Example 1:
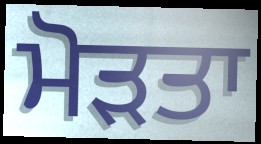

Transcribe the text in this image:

ਮੋੜਤਾ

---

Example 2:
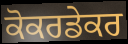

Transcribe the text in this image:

ਕੋਕਰਡੇਕਰ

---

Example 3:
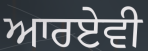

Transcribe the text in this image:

ਆਰਏਵੀ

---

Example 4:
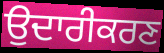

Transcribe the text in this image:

ਉਦਾਰੀਕਰਣ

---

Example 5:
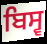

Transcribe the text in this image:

ਬਿਸ੍ਵ